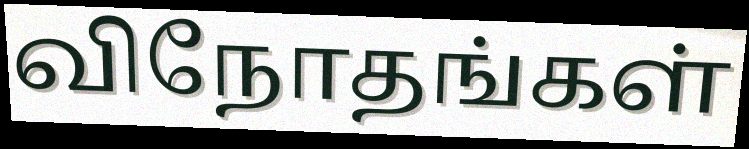
விநோதங்கள்